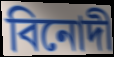
বিনোদী